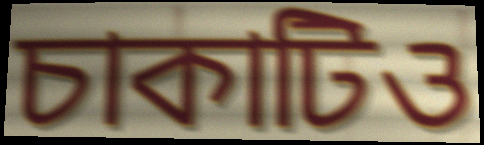
চাকাটিও